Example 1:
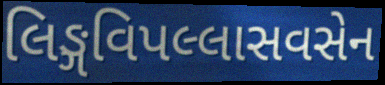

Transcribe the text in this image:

લિઙ્ગવિપલ્લાસવસેન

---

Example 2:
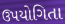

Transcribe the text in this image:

ઉપયોગિતા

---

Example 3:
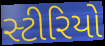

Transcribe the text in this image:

સ્ટીરિયો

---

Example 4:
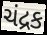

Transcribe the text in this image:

ચંદ્રક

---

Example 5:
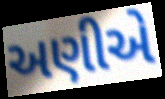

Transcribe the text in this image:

અણીએ